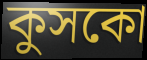
কুসকো